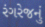
રંગરેજનું